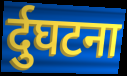
र्दुघटना